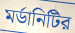
মর্ডানিটির